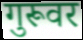
गुरूवर